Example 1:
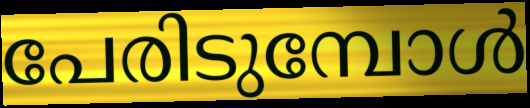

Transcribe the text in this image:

പേരിടുമ്പോൾ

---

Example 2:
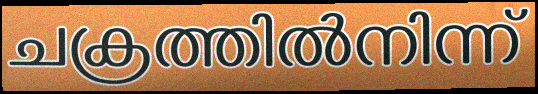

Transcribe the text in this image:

ചക്രത്തിൽനിന്ന്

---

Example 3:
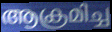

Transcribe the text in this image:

ആക്രമിച്ച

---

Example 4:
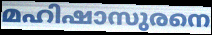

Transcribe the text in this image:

മഹിഷാസുരനെ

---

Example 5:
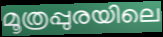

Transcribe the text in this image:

മൂത്രപ്പുരയിലെ